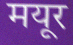
मयूर